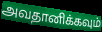
அவதானிக்கவும்